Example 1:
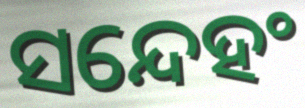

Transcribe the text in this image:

ସନ୍ଦେହଂ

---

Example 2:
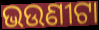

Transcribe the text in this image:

ଭଉଣୀଟା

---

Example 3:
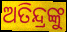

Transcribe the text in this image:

ଅତିନ୍ଦ୍ରଙ୍କୁ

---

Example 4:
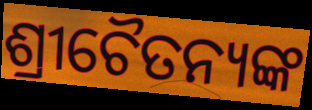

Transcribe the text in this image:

ଶ୍ରୀଚୈତନ୍ୟଙ୍କ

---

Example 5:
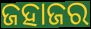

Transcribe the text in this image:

ଜହାଜର